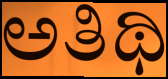
ಅತಿಥಿ